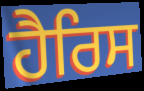
ਹੈਰਿਸ